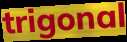
trigonal